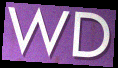
WD